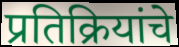
प्रतिक्रियांचे